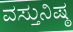
ವಸ್ತುನಿಷ್ಠ